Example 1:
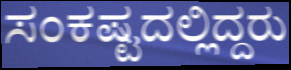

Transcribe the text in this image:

ಸಂಕಷ್ಟದಲ್ಲಿದ್ದರು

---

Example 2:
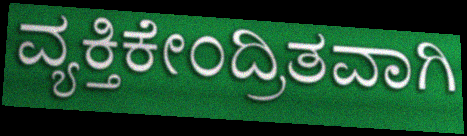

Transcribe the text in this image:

ವ್ಯಕ್ತಿಕೇಂದ್ರಿತವಾಗಿ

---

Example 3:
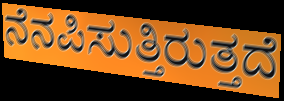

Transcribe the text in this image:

ನೆನಪಿಸುತ್ತಿರುತ್ತದೆ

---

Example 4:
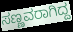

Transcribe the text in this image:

ಸಣ್ಣವರಾಗಿದ್ದ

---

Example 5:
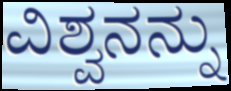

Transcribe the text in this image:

ವಿಶ್ವನನ್ನು